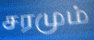
சரமும்